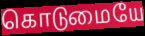
கொடுமையே